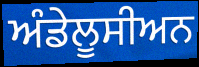
ਅੰਡੇਲੂਸੀਅਨ